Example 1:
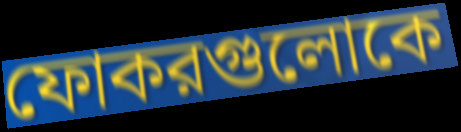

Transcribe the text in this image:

ফোকরগুলোকে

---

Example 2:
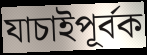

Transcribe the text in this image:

যাচাইপূর্বক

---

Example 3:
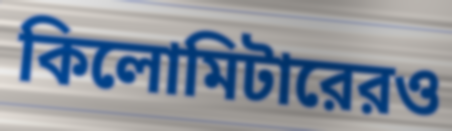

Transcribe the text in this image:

কিলোমিটারেরও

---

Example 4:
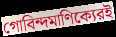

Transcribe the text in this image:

গোবিন্দমাণিক্যেরই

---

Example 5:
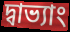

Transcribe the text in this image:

দ্বাভ্যাং